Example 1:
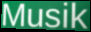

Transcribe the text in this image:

Musik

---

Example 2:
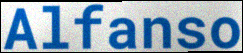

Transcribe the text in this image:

Alfanso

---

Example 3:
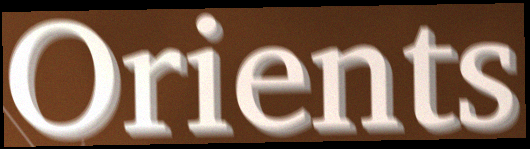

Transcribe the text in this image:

Orients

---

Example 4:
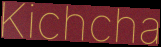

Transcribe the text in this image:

Kichcha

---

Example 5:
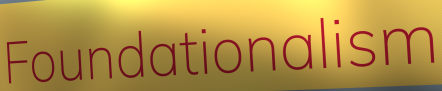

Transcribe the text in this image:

Foundationalism